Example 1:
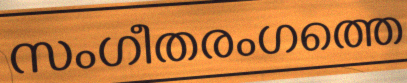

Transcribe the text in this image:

സംഗീതരംഗത്തെ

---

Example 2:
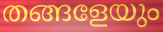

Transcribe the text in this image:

തങ്ങളേയും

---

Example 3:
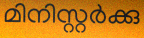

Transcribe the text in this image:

മിനിസ്റ്റർക്കു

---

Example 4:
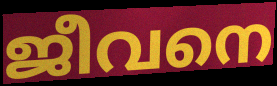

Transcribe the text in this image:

ജീവനെ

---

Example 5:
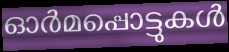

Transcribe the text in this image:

ഓർമപ്പൊട്ടുകൾ